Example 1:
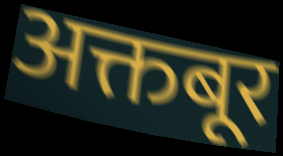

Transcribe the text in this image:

अक्तबूर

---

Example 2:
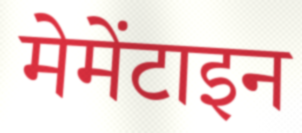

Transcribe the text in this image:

मेमेंटाइन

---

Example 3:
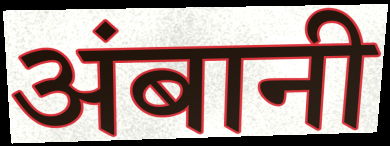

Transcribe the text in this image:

अंबानी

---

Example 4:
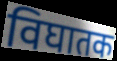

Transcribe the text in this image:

विघातक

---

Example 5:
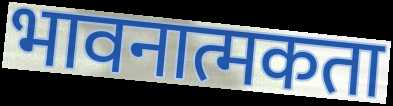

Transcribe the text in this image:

भावनात्मकता